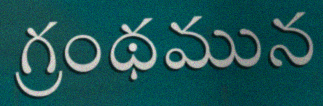
గ్రంథమున